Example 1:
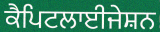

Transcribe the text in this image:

ਕੈਪਿਟਲਾਈਜੇਸ਼ਨ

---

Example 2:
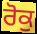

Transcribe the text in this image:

ਰੋਕੁ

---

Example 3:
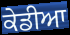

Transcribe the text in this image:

ਕੇਡੀਆ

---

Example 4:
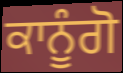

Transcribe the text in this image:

ਕਾਨੂੰਗੋ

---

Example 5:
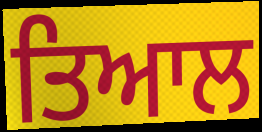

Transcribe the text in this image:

ਤਿਆਲ